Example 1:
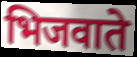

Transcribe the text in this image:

भिजवाते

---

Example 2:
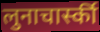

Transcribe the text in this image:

लुनाचार्स्की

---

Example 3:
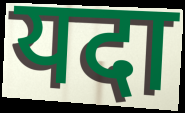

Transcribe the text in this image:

यदा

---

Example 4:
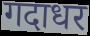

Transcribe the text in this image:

गदाधर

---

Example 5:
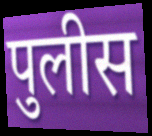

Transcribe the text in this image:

पुलीस